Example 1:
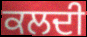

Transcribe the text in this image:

ਕਲਦੀ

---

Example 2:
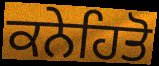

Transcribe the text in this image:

ਕਨੇਹਿਤੋ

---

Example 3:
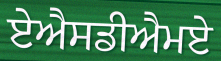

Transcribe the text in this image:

ਏਐਸਡੀਐਮਏ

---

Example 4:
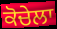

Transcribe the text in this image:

ਕੋਚੇਲਾ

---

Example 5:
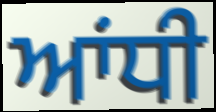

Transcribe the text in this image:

ਆਂਧੀ